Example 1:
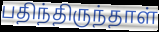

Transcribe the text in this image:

பதிந்திருந்தாள்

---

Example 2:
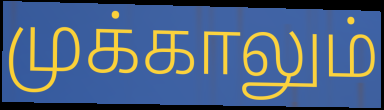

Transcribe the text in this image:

முக்காலும்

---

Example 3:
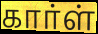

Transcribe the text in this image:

கார்ள்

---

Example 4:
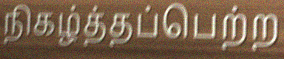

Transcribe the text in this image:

நிகழ்த்தப்பெற்ற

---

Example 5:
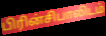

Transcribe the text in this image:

பிரின்சிபாலிடம்